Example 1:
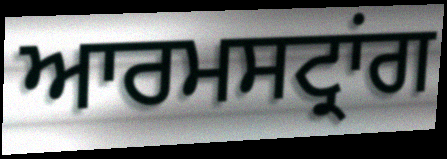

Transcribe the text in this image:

ਆਰਮਸਟ੍ਰਾਂਗ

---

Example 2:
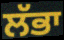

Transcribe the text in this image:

ਲੱਭਾ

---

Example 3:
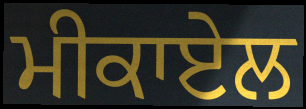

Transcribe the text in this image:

ਮੀਕਾਏਲ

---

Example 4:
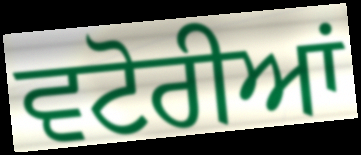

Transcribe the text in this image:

ਵਟੋਰੀਆਂ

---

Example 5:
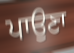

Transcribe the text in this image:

ਪਾਉਣਾ